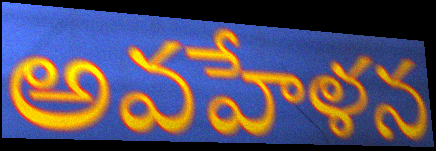
అవహేళన